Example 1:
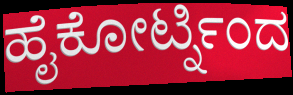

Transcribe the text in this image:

ಹೈಕೋರ್ಟ್ನಿಂದ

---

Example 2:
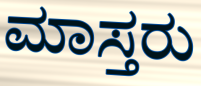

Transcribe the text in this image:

ಮಾಸ್ತರು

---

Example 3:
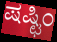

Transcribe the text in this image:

ಷಷ್ಟಿಂ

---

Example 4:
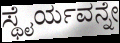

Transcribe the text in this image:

ಸ್ಥೈರ್ಯವನ್ನೇ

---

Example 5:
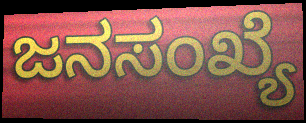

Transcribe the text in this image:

ಜನಸಂಖ್ಯೆ